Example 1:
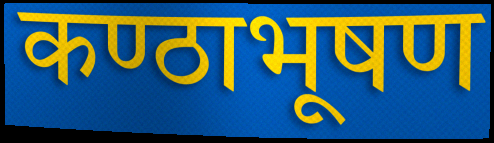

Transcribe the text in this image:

कण्ठाभूषण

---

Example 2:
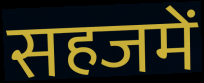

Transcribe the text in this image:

सहजमें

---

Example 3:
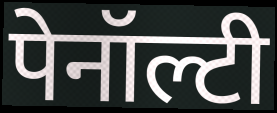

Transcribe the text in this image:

पेनॉल्टी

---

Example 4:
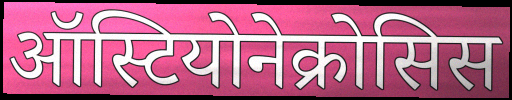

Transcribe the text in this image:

ऑस्टियोनेक्रोसिस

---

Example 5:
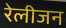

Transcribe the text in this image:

रेलीजन